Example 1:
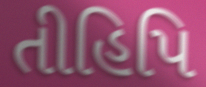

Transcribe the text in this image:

તીહિપિ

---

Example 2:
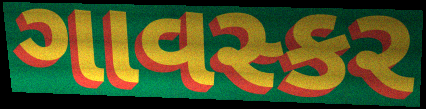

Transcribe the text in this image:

ગાવસ્કર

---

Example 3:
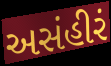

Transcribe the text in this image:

અસંહીરં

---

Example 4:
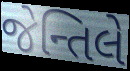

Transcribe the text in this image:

જેન્તિલે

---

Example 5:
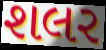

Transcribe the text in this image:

શલર